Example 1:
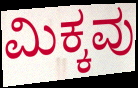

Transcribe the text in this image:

ಮಿಕ್ಕವು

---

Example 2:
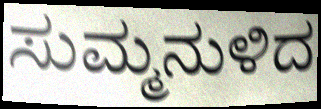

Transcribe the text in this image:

ಸುಮ್ಮನುಳಿದ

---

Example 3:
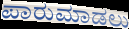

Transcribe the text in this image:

ಪಾರುಮಾಡಲು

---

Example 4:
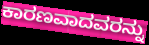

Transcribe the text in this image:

ಕಾರಣವಾದವರನ್ನು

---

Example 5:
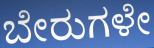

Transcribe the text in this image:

ಬೇರುಗಳೇ